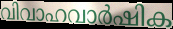
വിവാഹവാർഷിക